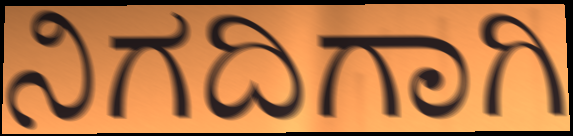
ನಿಗದಿಗಾಗಿ